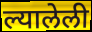
ल्यालेली